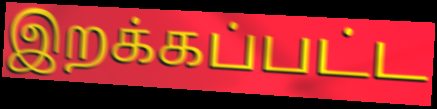
இறக்கப்பட்ட